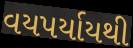
વયપર્યાયથી